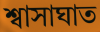
শ্বাসাঘাত